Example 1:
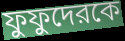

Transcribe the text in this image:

ফুফুদেরকে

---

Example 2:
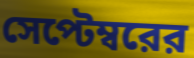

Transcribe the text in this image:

সেপ্টেম্বরের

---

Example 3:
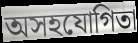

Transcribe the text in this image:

অসহযোগিতা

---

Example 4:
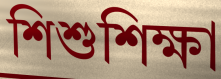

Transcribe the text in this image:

শিশুশিক্ষা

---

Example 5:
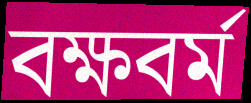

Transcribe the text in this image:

বক্ষবর্ম